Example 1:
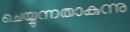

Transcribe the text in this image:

ചെയ്യുന്നതാകുന്നു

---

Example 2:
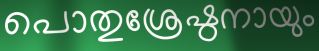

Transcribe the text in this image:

പൊതുശ്രേഷ്ഠനായും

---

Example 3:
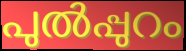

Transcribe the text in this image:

പുൽപ്പുറം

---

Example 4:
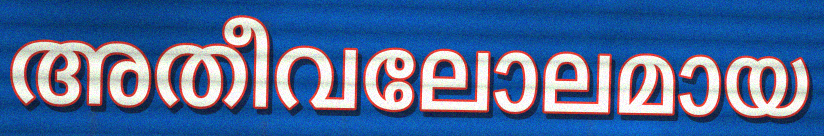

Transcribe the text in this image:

അതീവലോലമായ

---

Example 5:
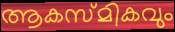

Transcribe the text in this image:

ആകസ്മികവും